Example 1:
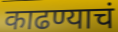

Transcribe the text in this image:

काढण्याचं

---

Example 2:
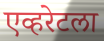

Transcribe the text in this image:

एव्हरेटला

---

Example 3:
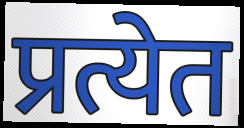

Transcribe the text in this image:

प्रत्येत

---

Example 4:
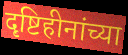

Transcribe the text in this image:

दृष्टिहीनांच्या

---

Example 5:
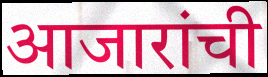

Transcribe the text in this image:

आजारांची